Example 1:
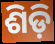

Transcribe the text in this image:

ଶିଡ଼ି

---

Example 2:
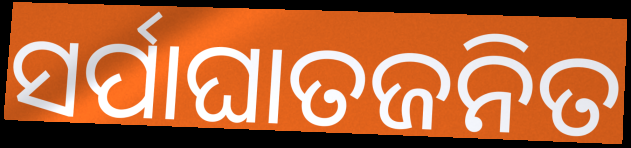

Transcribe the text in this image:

ସର୍ପାଘାତଜନିତ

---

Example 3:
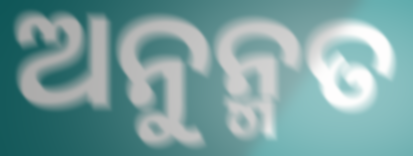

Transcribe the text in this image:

ଅନୁନ୍ମତ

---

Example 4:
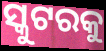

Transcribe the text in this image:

ସ୍କୁଟରକୁ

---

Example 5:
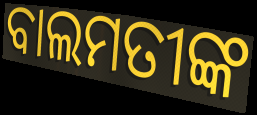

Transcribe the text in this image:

ବାଲମତୀଙ୍କ